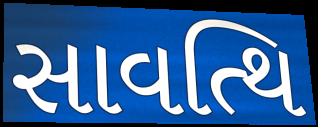
સાવત્થિ